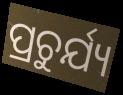
ପ୍ରଚୁର୍ଯ୍ୟ